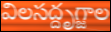
విలసద్దృగ్జాల